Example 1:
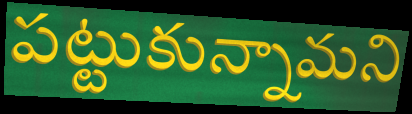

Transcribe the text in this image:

పట్టుకున్నామని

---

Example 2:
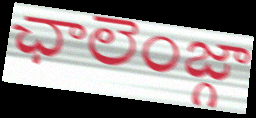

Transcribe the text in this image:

ఛాలెంజ్గా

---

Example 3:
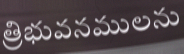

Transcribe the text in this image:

త్రిభువనములను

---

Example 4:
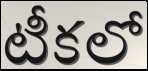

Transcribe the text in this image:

టీకలో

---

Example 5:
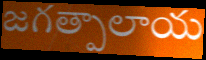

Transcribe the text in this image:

జగత్పాలాయ